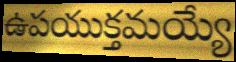
ఉపయుక్తమయ్యే